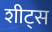
शीट्स